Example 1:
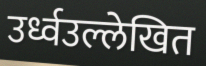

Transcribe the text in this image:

उर्ध्वउल्लेखित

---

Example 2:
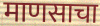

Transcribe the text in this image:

माणसाचा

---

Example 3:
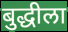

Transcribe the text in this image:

बुद्धीला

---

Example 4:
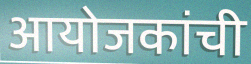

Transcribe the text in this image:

आयोजकांची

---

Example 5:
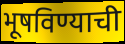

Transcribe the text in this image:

भूषविण्याची